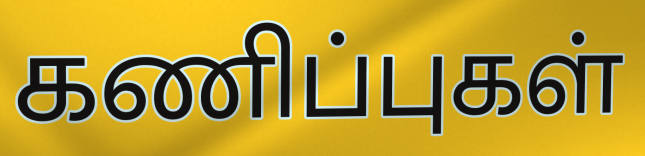
கணிப்புகள்